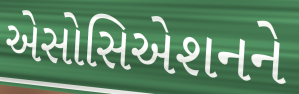
એસોસિએશનને